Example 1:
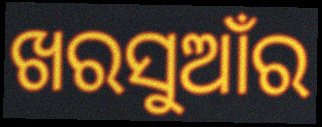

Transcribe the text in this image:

ଖରସୁଆଁର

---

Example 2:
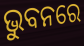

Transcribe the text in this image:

ଭୁବନରେ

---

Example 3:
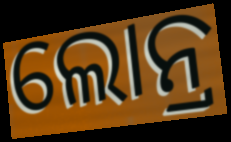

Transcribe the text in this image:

ଲୋନ୍ର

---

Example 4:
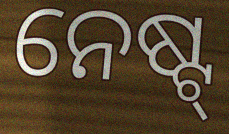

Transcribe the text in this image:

ନେଷ୍ଟ୍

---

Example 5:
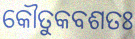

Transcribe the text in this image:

କୌତୁକବଶତଃ